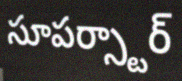
సూపర్స్టార్